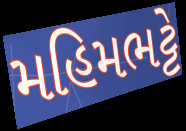
મહિમભટ્ટે